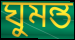
ঘুমন্ত